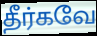
தீர்கவே